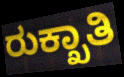
ರುಕ್ಖಾತಿ